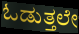
ಓಡುತ್ತಲೇ